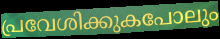
പ്രവേശിക്കുകപോലും